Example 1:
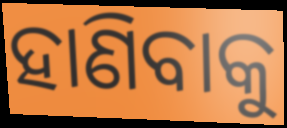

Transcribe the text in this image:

ହାଣିବାକୁ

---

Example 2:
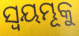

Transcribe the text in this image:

ସ୍ଵୟମ୍ଭୂକୁ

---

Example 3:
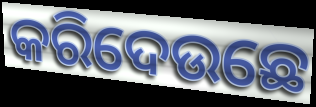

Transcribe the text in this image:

କରିଦେଉଛେ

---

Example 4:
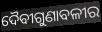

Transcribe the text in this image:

ଦୈବୀଗୁଣାବଳୀର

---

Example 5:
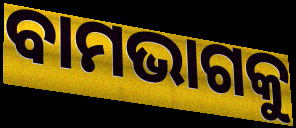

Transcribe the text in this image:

ବାମଭାଗକୁ